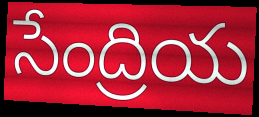
సేంద్రియ